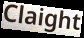
Claight